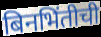
बिनभिंतीची